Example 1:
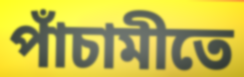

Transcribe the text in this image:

পাঁচামীতে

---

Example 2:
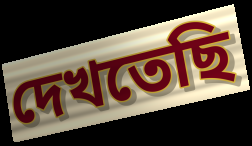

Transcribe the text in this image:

দেখতেছি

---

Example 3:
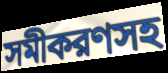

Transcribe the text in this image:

সমীকরণসহ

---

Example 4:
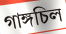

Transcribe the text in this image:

গাঙ্গচিল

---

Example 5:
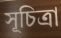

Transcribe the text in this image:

সূচিত্রা